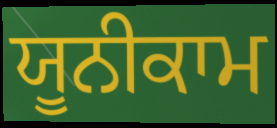
ਯੂਨੀਕਾਮ